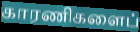
காரணிகளைப்